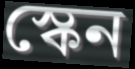
স্কেন